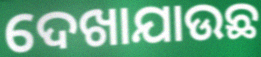
ଦେଖାଯାଉଛ